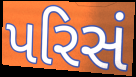
પરિસં